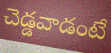
చెడ్డవాడంటే